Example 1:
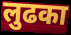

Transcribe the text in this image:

लुढका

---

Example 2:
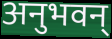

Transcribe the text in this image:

अनुभवन्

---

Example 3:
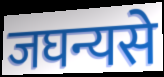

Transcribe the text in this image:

जघन्यसे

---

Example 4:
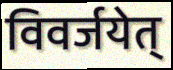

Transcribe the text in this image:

विवर्जयेत्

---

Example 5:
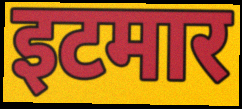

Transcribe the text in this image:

इटमार